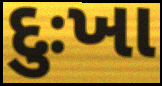
દુઃખા